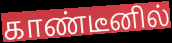
காண்டீனில்